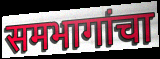
समभागांचा